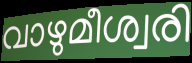
വാഴുമീശ്വരി